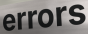
errors